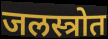
जलस्त्रोत